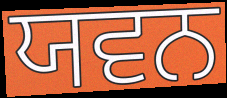
ਯਵਨ